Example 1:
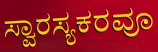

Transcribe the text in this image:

ಸ್ವಾರಸ್ಯಕರವೂ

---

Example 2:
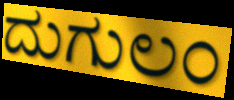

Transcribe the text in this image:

ದುಗುಲಂ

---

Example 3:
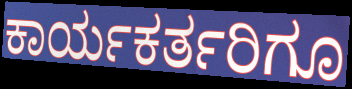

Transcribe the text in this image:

ಕಾರ್ಯಕರ್ತರಿಗೂ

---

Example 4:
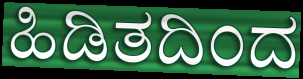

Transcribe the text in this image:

ಹಿಡಿತದಿಂದ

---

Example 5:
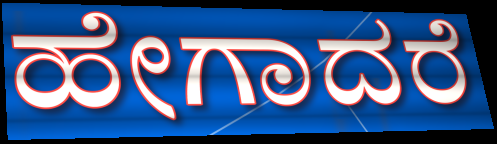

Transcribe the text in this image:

ಹೇಗಾದರೆ